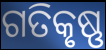
ଗତିକୃଷ୍ଣ